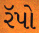
રૅપો